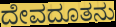
ದೇವದೂತನು